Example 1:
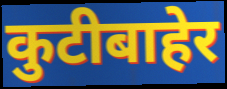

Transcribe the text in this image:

कुटीबाहेर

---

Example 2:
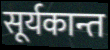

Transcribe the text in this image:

सूर्यकान्त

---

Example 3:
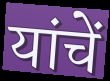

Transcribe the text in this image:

यांचें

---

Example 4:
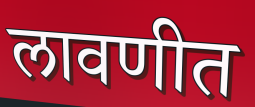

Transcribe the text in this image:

लावणीत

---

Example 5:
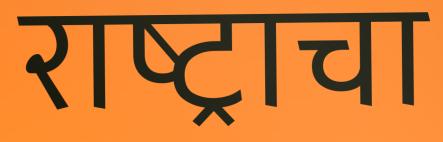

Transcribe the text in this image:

राष्ट्राचा